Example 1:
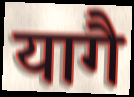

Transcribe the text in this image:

यागै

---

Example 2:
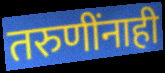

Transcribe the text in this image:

तरुणींनाही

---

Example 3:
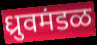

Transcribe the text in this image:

ध्रुवमंडळ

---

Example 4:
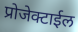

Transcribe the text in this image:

प्रोजेक्टाईल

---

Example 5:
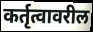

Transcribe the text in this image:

कर्तृत्वावरील